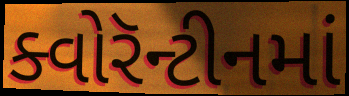
ક્વોરૅન્ટીનમાં